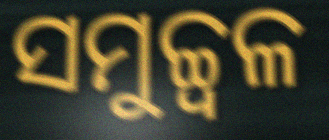
ସମୁଚ୍ଚ୍ୱଳ